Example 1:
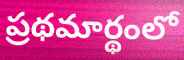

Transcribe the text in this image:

ప్రథమార్థంలో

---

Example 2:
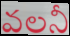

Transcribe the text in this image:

వలనీ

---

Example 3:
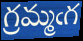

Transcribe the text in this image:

గ్రమ్మఁగ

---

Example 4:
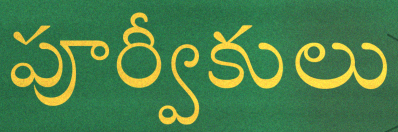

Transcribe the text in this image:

పూర్వీకులు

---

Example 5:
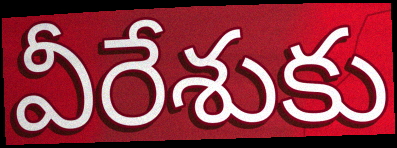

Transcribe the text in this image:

వీరేశుకు